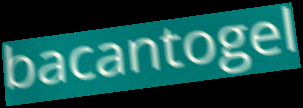
bacantogel